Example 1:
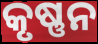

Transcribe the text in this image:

କୃଷ୍ଣନ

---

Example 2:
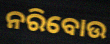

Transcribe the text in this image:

ନରିବୋଉ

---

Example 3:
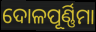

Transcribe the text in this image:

ଦୋଳପୂର୍ଣ୍ଣିମା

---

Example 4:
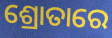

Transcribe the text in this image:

ଶ୍ରୋତାରେ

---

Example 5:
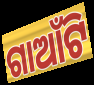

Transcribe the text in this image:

ଗାଆଁଟି